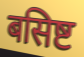
बसिष्ट